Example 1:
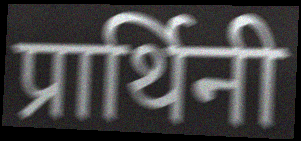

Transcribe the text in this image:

प्रार्थिनी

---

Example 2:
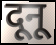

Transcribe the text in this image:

दूनू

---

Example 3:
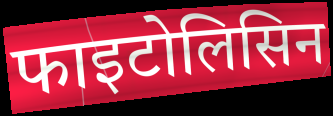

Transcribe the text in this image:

फाइटोलिसिन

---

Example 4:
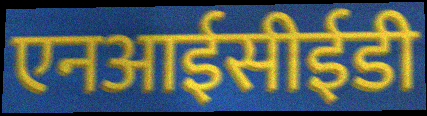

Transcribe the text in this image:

एनआईसीईडी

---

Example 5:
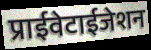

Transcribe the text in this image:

प्राईवेटाईजेशन